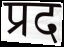
प्रद